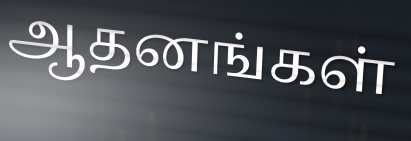
ஆதனங்கள்